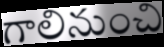
గాలినుంచి